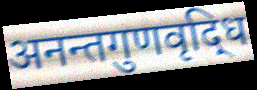
अनन्तगुणवृद्धि